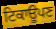
ਟਿਕਾਊਪਣ